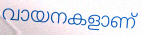
വായനകളാണ്